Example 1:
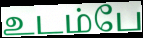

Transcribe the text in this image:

உடம்பே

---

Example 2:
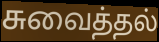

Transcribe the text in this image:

சுவைத்தல்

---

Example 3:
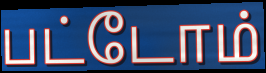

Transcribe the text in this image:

பட்டோம்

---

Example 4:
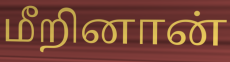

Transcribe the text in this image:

மீறினான்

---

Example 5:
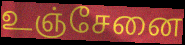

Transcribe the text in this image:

உஞ்சேனை